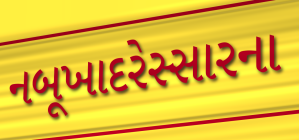
નબૂખાદરેસ્સારના